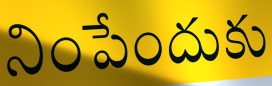
నింపేందుకు